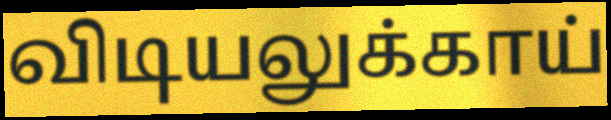
விடியலுக்காய்